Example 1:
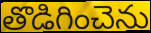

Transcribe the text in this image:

తొడిగించెను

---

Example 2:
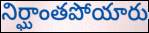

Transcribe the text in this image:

నిర్ఘాంతపోయారు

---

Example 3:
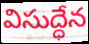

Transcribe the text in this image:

విసుద్ధేన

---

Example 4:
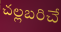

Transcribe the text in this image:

చల్లబరిచే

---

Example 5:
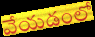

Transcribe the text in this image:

వేయడంలో